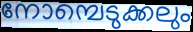
നോമ്പെടുക്കലും